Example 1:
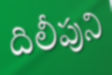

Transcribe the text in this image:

దిలీపుని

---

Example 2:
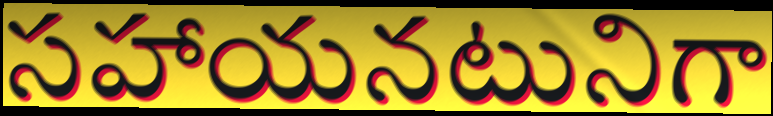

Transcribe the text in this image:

సహాయనటునిగా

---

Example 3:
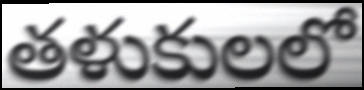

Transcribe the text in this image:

తళుకులలో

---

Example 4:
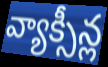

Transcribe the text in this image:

వ్యాక్సీన్ల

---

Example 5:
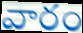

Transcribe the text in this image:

వారం